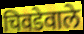
चिवडेवाले